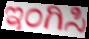
ಇಂಗಿಸಿ